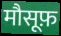
मौसूफ़